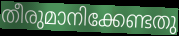
തീരുമാനിക്കേണ്ടതു